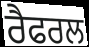
ਰੈਫਰਲ